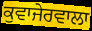
ਕੁਵਾਜੇਰਵਾਲਾ